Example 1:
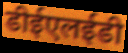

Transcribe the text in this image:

डीईएलईडी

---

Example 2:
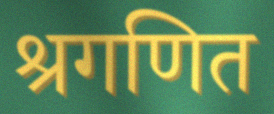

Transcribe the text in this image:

श्रगणित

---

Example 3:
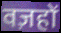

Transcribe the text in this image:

वज़हों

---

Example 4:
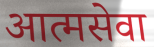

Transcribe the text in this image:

आत्मसेवा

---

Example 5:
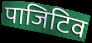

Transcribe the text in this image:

पाजिटिव